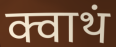
क्वाथं